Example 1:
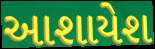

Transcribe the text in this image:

આશાયેશ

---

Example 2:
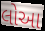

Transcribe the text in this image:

લોઆ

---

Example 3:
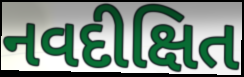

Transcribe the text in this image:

નવદીક્ષિત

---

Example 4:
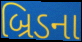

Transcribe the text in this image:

બ્રિડના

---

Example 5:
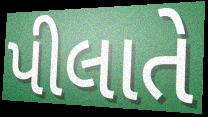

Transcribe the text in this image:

પીલાતે